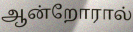
ஆன்றோரால்